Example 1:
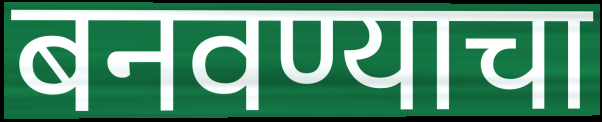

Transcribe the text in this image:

बनवण्याचा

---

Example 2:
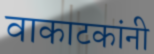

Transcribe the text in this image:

वाकाटकांनी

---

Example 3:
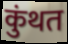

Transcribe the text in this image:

कुंथत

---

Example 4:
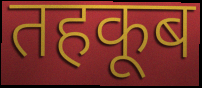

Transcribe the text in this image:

तहकूब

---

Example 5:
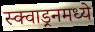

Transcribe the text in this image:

स्क्वाड्रनमध्ये